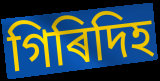
গিৰিদিহ